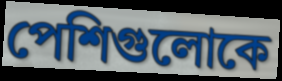
পেশিগুলোকে